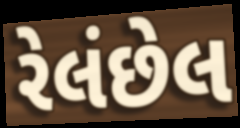
રેલંછેલ